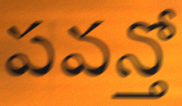
పవన్తో